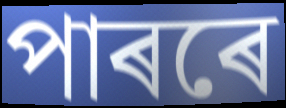
পাৰৰে